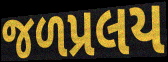
જળપ્રલય